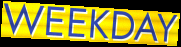
WEEKDAY